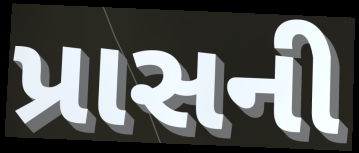
પ્રાસની